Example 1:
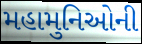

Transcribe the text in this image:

મહામુનિઓની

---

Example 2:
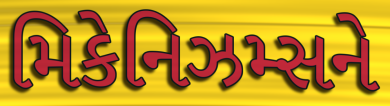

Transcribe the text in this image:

મિકેનિઝમ્સને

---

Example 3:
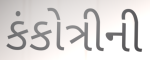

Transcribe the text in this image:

કંકોત્રીની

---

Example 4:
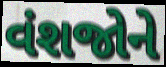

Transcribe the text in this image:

વંશજોને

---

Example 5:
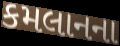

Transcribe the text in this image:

કમલાનના